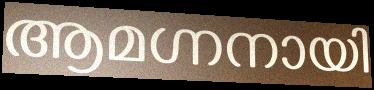
ആമഗ്നനായി